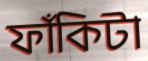
ফাঁকিটা